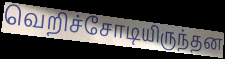
வெறிச்சோடியிருந்தன